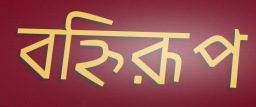
বহ্নিরূপ